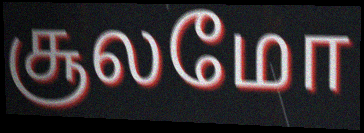
சூலமோ